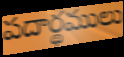
పదార్థములు